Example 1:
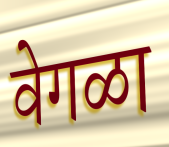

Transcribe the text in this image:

वेगळा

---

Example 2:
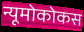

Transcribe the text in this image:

न्यूमोकोकस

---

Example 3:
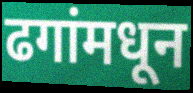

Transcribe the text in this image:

ढगांमधून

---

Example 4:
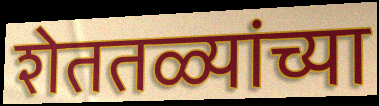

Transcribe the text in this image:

शेततळ्यांच्या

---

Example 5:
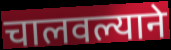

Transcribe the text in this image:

चालवल्याने